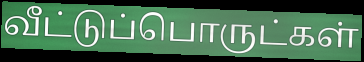
வீட்டுப்பொருட்கள்